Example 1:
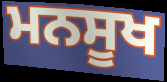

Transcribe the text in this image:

ਮਨਸੂਖ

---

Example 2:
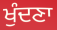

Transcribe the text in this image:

ਖੁੰਦਣਾ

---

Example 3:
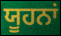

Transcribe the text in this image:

ਯੂਹਨਾਂ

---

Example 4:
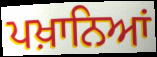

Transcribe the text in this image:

ਪਖ਼ਾਨਿਆਂ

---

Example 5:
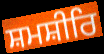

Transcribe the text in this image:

ਸ਼ਮਸ਼ੀਰਿ